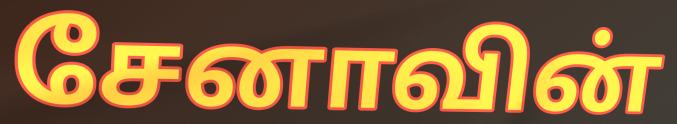
சேனாவின்